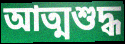
আত্মশুদ্ধ